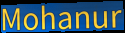
Mohanur